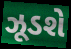
ઝૂડશે